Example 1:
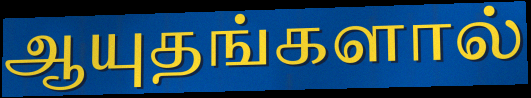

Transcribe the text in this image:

ஆயுதங்களால்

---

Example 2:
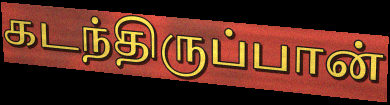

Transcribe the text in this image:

கடந்திருப்பான்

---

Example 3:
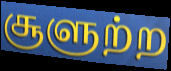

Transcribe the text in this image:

சூளுற்ற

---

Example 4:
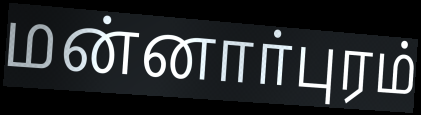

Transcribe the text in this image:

மன்னார்புரம்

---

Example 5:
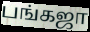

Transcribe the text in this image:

பங்கஜா